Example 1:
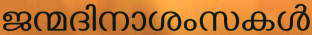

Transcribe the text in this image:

ജന്മദിനാശംസകൾ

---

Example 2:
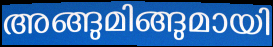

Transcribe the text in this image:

അങ്ങുമിങ്ങുമായി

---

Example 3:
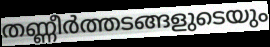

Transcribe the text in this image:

തണ്ണീർത്തടങ്ങളുടെയും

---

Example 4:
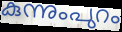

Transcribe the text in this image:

കുന്നുംപുറം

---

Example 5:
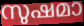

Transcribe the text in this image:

സുഷമാ